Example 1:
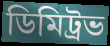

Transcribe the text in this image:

ডিমিট্রভ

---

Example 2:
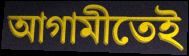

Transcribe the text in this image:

আগামীতেই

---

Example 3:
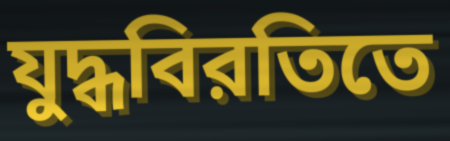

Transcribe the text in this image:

যুদ্ধবিরতিতে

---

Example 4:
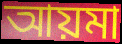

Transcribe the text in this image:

আয়মা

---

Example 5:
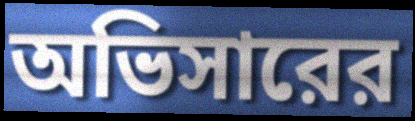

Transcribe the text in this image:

অভিসারের